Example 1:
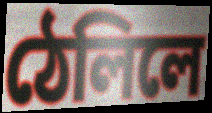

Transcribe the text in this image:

ঠেলিলে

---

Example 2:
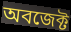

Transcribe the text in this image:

অবজেক্ট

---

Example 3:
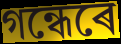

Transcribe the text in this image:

গন্ধেৰে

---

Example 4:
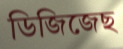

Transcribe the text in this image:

ডিজিজেছ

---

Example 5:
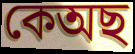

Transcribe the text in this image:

কেঅছ